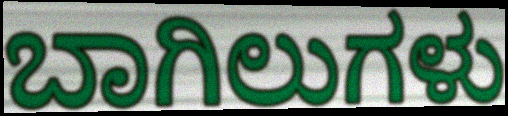
ಬಾಗಿಲುಗಳು